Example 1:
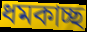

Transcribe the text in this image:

ধমকাচ্ছ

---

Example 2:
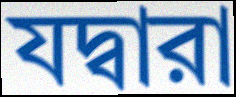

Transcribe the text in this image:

যদ্বারা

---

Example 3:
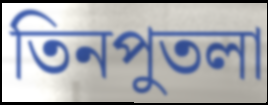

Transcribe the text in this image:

তিনপুতলা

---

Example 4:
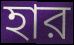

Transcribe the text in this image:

হার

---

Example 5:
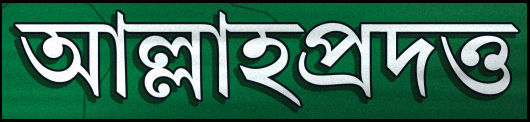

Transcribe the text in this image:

আল্লাহপ্রদত্ত